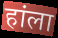
हांला